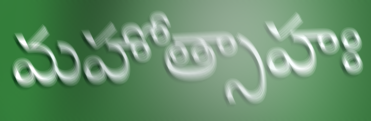
మహోత్సాహః